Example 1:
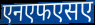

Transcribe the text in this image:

एनएफएसए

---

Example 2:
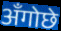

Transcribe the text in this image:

अँगोछे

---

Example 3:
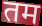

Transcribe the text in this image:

तम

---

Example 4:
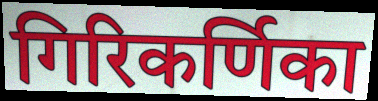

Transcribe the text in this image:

गिरिकर्णिका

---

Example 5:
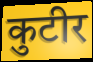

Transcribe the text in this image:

कुटीर